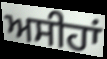
ਅਸੀਹਾਂ